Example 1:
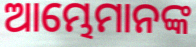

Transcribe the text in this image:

ଆମ୍ଭେମାନଙ୍କ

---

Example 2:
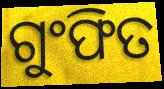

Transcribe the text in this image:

ଗୁଂଫିତ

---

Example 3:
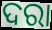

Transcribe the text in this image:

ଦରା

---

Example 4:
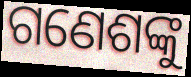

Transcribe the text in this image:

ଗଣେଶଙ୍କୁ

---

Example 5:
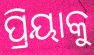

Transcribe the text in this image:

ପ୍ରିୟାକୁ